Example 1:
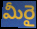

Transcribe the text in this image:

మీరై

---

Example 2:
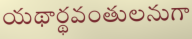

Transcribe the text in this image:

యథార్థవంతులనుగా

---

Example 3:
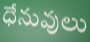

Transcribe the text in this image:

ధేనువులు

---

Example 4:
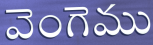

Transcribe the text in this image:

వెంగెము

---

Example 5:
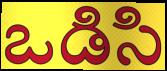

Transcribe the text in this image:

ఒడిసి